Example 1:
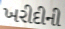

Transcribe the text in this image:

ખરીદીની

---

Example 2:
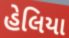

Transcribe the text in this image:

હેલિયા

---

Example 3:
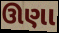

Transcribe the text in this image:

ઊણા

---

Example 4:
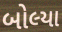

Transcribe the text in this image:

બોલ્યા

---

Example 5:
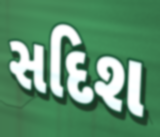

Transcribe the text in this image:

સદિશ